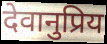
देवानुप्रिय